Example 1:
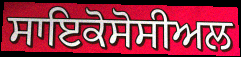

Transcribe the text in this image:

ਸਾਇਕੋਸੋਸੀਅਲ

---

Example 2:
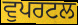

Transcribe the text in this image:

ਵੁਪਰਟਲ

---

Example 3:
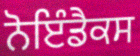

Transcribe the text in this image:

ਨੋਇੰਡੈਕਸ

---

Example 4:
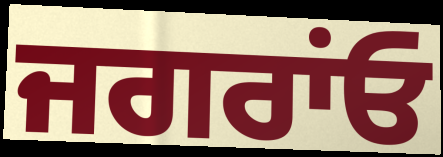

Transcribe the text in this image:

ਜਗਰਾਂਓ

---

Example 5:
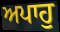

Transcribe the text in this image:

ਅਪਾਹੁ